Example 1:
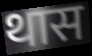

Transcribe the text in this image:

थास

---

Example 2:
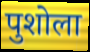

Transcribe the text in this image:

पुशोला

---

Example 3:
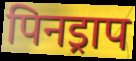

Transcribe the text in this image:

पिनड्राप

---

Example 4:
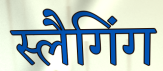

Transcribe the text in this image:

स्लैगिंग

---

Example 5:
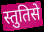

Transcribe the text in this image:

स्तुतिसे